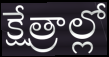
క్షేత్రాల్లో